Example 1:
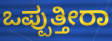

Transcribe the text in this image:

ಒಪ್ಪುತ್ತೀರಾ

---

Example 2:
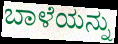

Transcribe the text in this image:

ಬಾಳೆಯನ್ನು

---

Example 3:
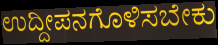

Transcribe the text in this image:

ಉದ್ದೀಪನಗೊಳಿಸಬೇಕು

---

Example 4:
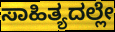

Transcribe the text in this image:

ಸಾಹಿತ್ಯದಲ್ಲೇ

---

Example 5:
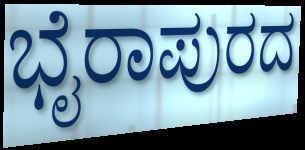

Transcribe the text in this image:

ಭೈರಾಪುರದ